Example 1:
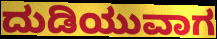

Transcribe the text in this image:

ದುಡಿಯುವಾಗ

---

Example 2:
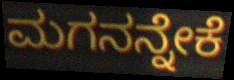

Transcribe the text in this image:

ಮಗನನ್ನೇಕೆ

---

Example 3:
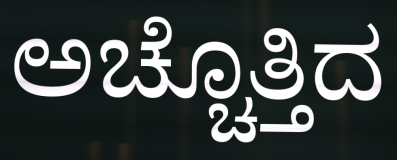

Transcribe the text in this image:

ಅಚ್ಚೊತ್ತಿದ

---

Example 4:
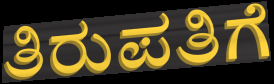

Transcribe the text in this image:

ತಿರುಪತಿಗೆ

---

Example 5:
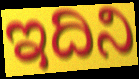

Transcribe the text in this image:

ಇದಿನಿ